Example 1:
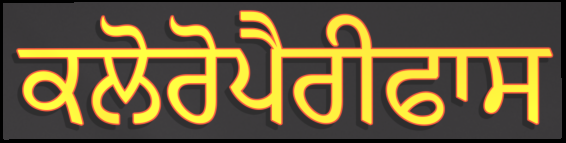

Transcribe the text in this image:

ਕਲੋਰੋਪੈਰੀਫਾਸ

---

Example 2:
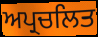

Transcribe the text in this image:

ਅਪ੍ਰਚਲਿਤ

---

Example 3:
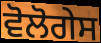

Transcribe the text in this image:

ਵੋਲੋਗੇਸ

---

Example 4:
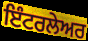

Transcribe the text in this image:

ਇੰਟਰਲੇਅਰ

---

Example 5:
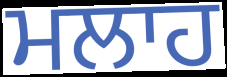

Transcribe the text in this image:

ਮਲਾਹ